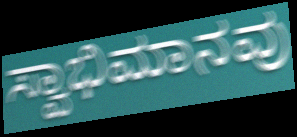
ಸ್ವಾಭಿಮಾನವು